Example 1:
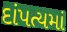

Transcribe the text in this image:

દાંપત્યમાં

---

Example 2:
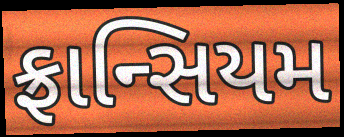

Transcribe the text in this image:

ફ્રાન્સિયમ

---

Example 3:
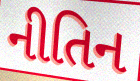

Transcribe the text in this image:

નીતિન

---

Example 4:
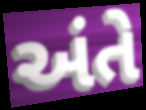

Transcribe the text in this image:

અંતે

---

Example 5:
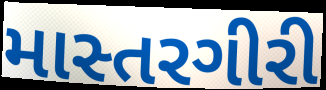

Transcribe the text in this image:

માસ્તરગીરી